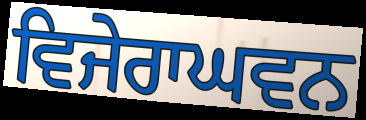
ਵਿਜੇਰਾਘਵਨ